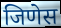
जिणेस